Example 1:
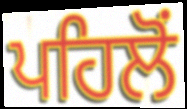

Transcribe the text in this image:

ਪਹਿਲੋਂ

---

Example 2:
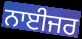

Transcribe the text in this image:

ਨਾਈਜਰ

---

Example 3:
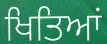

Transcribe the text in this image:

ਖਿਤਿਆਂ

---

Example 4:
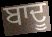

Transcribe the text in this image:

ਬਾਦੂ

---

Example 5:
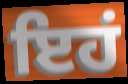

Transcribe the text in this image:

ਇਹਂ